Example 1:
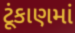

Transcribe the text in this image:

ટૂંકાણમાં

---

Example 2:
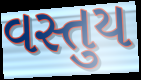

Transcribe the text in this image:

વસ્તુય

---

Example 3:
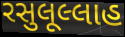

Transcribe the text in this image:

રસુલૂલ્લાહ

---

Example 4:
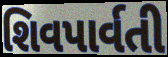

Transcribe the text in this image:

શિવપાર્વતી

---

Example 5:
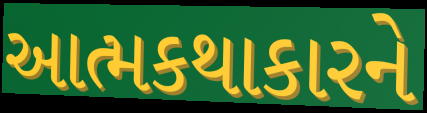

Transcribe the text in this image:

આત્મકથાકારને